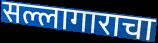
सल्लागाराचा